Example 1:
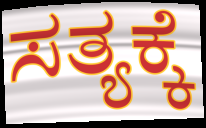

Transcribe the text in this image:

ಸತ್ಯಕ್ಕೆ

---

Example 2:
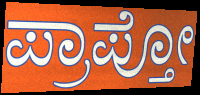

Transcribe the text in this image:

ಪ್ರಾಪ್ತೋ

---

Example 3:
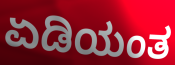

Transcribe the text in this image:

ಏಡಿಯಂತ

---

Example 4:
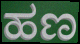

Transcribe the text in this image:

ಹಣ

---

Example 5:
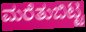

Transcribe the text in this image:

ಮರೆತುಬಿಟ್ಟ